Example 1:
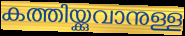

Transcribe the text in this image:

കത്തിയ്ക്കുവാനുള്ള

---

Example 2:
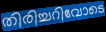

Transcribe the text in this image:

തിരിച്ചറിവോടെ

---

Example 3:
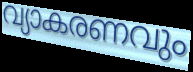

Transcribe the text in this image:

വ്യാകരണവും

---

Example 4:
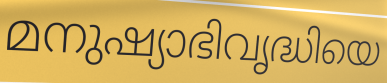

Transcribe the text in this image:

മനുഷ്യാഭിവൃദ്ധിയെ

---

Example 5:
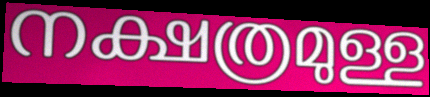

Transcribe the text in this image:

നക്ഷത്രമുള്ള